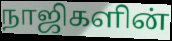
நாஜிகளின்